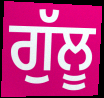
ਗੁੱਲੂ